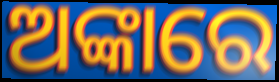
ଅଙ୍କାରେ